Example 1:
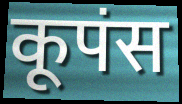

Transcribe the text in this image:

कूपंस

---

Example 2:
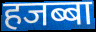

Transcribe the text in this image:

हजब्बा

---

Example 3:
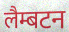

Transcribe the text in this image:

लैम्बटन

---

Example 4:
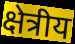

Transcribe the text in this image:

क्षेत्रीय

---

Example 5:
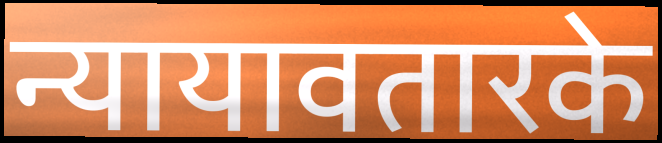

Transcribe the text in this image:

न्यायावतारके